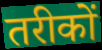
तरीकों